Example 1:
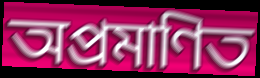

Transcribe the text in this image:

অপ্ৰমাণিত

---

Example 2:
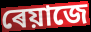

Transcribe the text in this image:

ৰেয়াজে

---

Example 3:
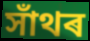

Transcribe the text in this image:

সাঁথৰ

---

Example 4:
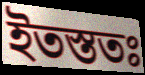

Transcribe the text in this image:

ইতস্ততঃ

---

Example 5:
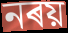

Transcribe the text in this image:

নৰয়